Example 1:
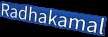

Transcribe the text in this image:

Radhakamal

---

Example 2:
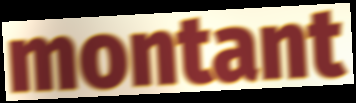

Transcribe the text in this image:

montant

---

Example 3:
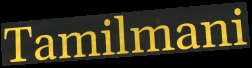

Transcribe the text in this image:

Tamilmani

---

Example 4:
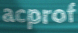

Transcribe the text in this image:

acprof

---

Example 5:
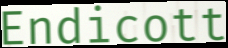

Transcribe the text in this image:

Endicott